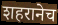
शहरानेच